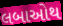
લબાઓથ